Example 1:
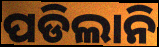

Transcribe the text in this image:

ପଡିଲାନି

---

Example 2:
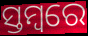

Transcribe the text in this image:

ସ୍ତମ୍ବରେ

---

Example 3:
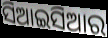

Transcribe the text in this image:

ସିଆଇସିଆର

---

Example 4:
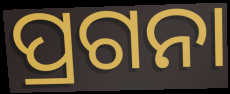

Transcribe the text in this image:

ପ୍ରଗନା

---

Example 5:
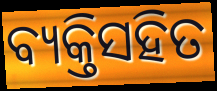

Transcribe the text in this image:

ବ୍ୟକ୍ତିସହିତ